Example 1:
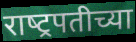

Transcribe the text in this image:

राष्ट्रपतीच्या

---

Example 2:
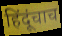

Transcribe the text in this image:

हिंदूंचाच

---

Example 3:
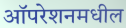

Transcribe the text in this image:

ऑपरेशनमधील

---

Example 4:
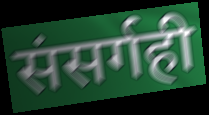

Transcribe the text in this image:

संसर्गही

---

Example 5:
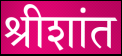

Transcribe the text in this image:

श्रीशांत